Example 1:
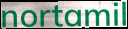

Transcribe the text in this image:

nortamil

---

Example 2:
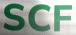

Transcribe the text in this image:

SCF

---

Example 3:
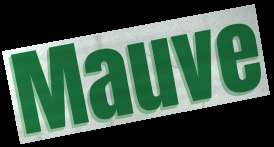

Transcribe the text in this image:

Mauve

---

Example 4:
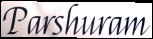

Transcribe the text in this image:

Parshuram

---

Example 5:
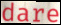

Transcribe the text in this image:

dare